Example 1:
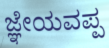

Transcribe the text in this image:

ಜ್ಞೇಯವಪ್ಪ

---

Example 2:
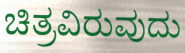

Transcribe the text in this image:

ಚಿತ್ರವಿರುವುದು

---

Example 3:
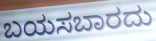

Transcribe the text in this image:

ಬಯಸಬಾರದು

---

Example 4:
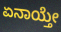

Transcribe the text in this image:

ಏನಾಯ್ತೇ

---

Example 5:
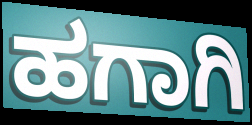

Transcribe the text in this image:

ಹಗಾಗಿ